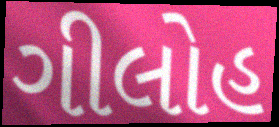
ગીલોહ